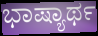
ಭಾಷ್ಯಾರ್ಥ